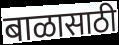
बाळासाठी